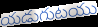
యడుగుటయు